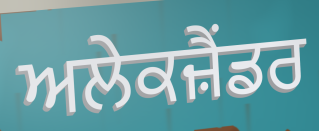
ਅਲੇਕਜ਼ੈਂਡਰ